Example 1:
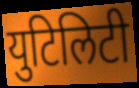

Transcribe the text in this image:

युटिलिटी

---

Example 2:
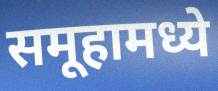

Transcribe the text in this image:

समूहामध्ये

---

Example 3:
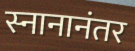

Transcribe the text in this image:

स्नानानंतर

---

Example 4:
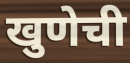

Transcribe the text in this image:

खुणेची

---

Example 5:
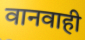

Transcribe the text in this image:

वानवाही